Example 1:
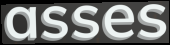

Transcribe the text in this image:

asses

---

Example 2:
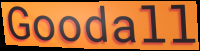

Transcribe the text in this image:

Goodall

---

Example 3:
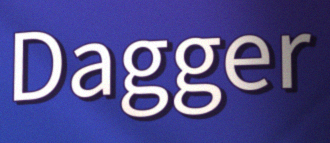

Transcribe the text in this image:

Dagger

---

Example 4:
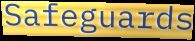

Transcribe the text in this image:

Safeguards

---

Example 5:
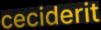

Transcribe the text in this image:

ceciderit